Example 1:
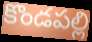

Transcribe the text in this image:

కొండపల్లి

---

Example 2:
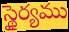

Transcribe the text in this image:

స్థైర్యము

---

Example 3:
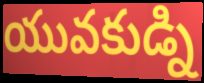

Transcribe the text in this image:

యువకుడ్ని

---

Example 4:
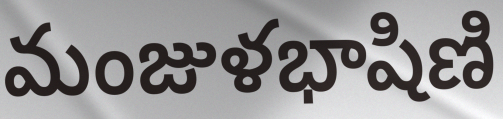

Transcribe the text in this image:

మంజుళభాషిణి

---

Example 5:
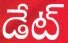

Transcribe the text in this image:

డేట్